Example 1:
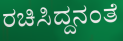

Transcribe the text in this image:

ರಚಿಸಿದ್ದನಂತೆ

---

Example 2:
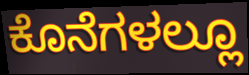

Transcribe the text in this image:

ಕೊನೆಗಳಲ್ಲೂ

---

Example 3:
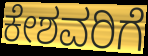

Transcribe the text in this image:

ಕೇಶವರಿಗೆ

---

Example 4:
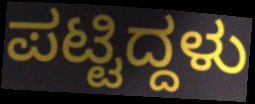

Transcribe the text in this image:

ಪಟ್ಟಿದ್ದಳು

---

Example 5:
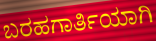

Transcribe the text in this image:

ಬರಹಗಾರ್ತಿಯಾಗಿ